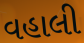
વહાલી